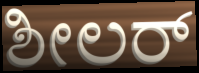
ಶೀಲರ್